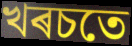
খৰচতে